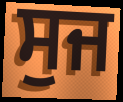
ਸੁਜ